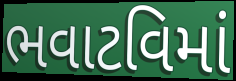
ભવાટવિમાં